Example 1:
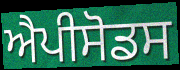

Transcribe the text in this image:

ਐਪੀਸੋਡਸ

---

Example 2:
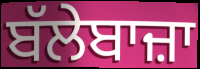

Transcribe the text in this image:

ਬੱਲੇਬਾਜ਼ਾ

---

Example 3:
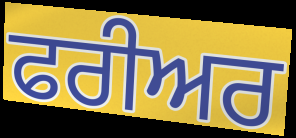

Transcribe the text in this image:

ਫਰੀਅਰ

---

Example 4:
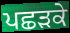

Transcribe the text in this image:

ਪਛੜਕੇ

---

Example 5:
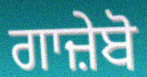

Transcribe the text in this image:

ਗਾਜ਼ੇਬੋ